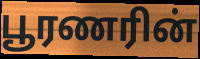
பூரணரின்